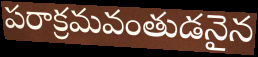
పరాక్రమవంతుడనైన